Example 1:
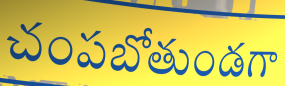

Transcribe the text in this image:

చంపబోతుండగా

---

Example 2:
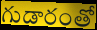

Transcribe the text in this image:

గుడారంతో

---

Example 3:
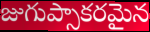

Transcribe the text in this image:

జుగుప్సాకరమైన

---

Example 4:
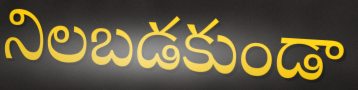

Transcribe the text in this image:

నిలబడకుండా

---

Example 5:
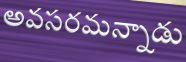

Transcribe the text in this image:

అవసరమన్నాడు